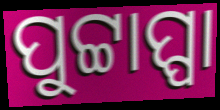
ପୁଟ୍ଟାପ୍ପା